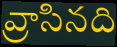
వ్రాసినది